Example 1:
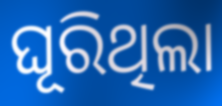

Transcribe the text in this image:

ଘୂରିଥିଲା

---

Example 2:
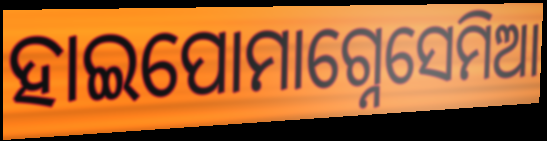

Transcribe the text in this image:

ହାଇପୋମାଗ୍ନେସେମିଆ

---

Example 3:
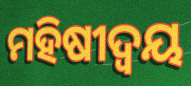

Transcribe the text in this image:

ମହିଷୀଦ୍ୱୟ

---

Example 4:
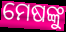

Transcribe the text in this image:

ମେଷଙ୍କୁ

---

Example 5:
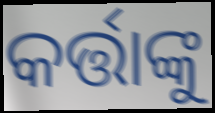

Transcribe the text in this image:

କର୍ତ୍ତାଙ୍କୁ